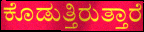
ಕೊಡುತ್ತಿರುತ್ತಾರೆ